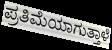
ಪ್ರತಿಮೆಯಾಗುತ್ತಾಳೆ